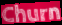
Churn